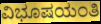
ವಿಭೂಷಯಂತಿ